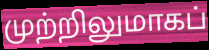
முற்றிலுமாகப்